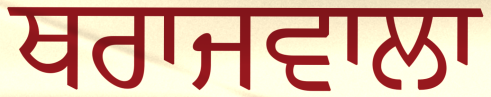
ਥਰਾਜਵਾਲਾ